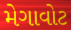
મેગાવોટ